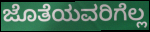
ಜೊತೆಯವರಿಗೆಲ್ಲ